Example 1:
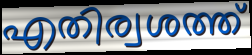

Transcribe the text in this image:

എതിര്വശത്ത്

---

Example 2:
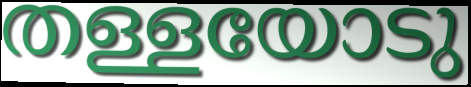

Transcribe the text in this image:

തള്ളയോടു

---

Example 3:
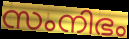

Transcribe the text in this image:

സംനിഭം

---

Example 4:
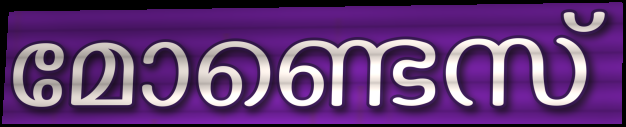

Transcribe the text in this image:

മോണ്ടെസ്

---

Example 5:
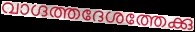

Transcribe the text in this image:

വാഗ്ദത്തദേശത്തേക്കു